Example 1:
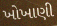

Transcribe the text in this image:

ખોખાણી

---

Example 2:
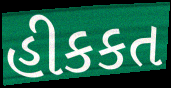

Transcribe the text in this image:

હીકકત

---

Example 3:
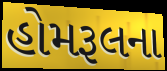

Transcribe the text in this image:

હોમરૂલના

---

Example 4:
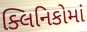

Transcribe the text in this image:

ક્લિનિકોમાં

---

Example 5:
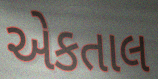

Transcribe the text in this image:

એકતાલ